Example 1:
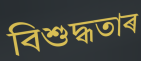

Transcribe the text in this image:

বিশুদ্ধতাৰ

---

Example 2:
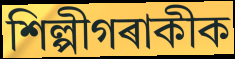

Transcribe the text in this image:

শিল্পীগৰাকীক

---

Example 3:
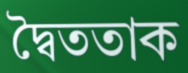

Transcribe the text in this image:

দ্বৈততাক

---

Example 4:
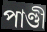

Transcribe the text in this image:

পাণ্ডী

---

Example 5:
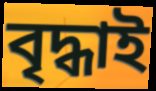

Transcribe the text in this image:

বৃদ্ধাই